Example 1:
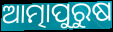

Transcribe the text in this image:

ଆତ୍ମାପୁରୁଷ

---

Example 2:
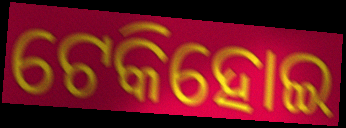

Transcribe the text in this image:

ଟେକିହୋଇ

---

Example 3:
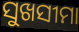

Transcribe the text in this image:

ସୁଖସୀମା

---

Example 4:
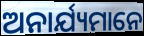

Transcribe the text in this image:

ଅନାର୍ଯ୍ୟମାନେ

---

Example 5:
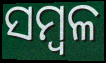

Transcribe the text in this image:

ସମ୍ବଳ